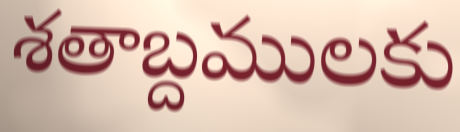
శతాబ్దములకు